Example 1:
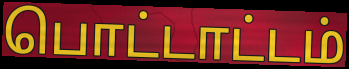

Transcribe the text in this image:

பொட்டாட்டம்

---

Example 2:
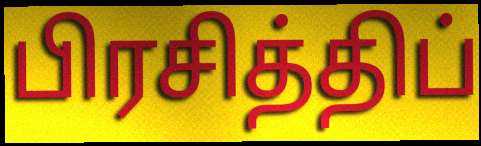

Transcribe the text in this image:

பிரசித்திப்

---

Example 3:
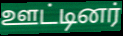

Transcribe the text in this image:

ஊட்டினர்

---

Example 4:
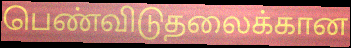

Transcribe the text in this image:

பெண்விடுதலைக்கான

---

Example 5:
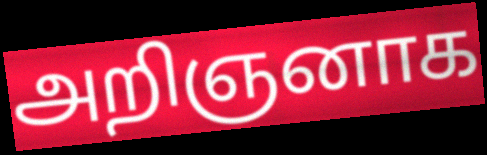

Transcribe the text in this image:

அறிஞனாக